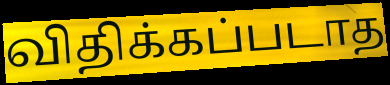
விதிக்கப்படாத